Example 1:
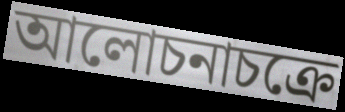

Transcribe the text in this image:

আলোচনাচক্রে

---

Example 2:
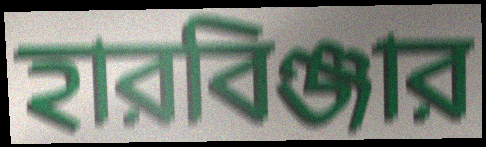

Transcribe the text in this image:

হারবিঞ্জার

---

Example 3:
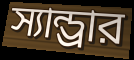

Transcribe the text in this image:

স্যান্ড্রার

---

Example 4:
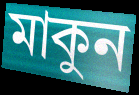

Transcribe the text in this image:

মাকুন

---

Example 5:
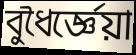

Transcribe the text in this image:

বুধৈর্জ্ঞেয়া